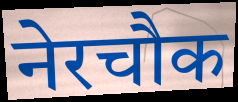
नेरचौक